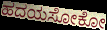
ಹದಯಸೋಕೋ